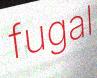
fugal